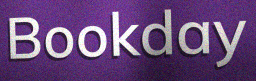
Bookday